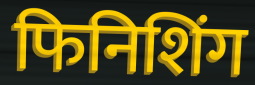
फिनिशिंग